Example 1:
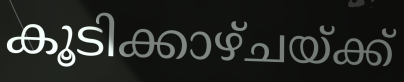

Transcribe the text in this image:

കൂടിക്കാഴ്ചയ്ക്ക്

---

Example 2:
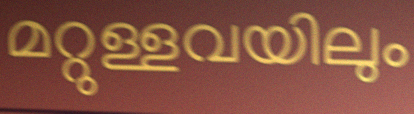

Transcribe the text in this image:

മറ്റുള്ളവയിലും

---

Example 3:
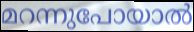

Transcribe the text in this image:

മറന്നുപോയാൽ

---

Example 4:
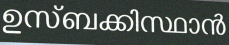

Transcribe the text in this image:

ഉസ്ബക്കിസ്ഥാൻ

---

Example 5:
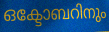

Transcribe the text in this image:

ഒക്ടോബറിനും